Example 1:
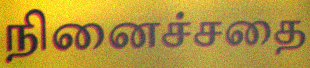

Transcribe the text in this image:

நினைச்சதை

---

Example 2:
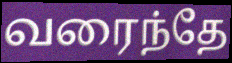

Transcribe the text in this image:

வரைந்தே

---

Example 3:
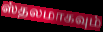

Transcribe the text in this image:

ஸ்தலமாகவும்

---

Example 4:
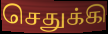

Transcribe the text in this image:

செதுக்கி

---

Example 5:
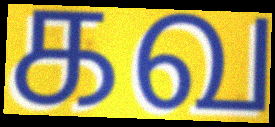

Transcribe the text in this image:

கவ